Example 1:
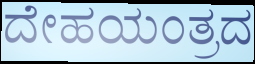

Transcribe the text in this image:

ದೇಹಯಂತ್ರದ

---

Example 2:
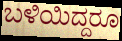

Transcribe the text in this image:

ಬಳಿಯಿದ್ದರೂ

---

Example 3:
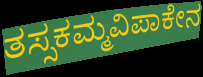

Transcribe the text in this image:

ತಸ್ಸಕಮ್ಮವಿಪಾಕೇನ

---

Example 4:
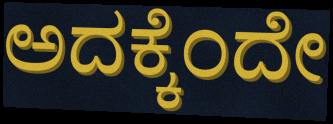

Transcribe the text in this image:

ಅದಕ್ಕೆಂದೇ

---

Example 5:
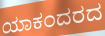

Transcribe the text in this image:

ಯಾಕಂದರದ